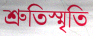
শ্রুতিস্মৃতি